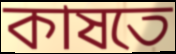
কাষতে